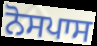
ਨੋਸਪਾਸ